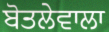
ਬੋਤਲੇਵਾਲਾ